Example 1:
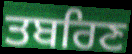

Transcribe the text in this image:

ਤਬਰਿਣ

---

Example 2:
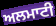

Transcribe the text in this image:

ਅਲਮਾਟੀ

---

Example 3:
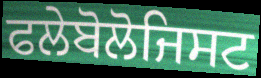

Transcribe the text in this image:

ਫਲੇਬੋਲੋਜਿਸਟ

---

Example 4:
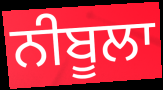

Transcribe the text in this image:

ਨੀਬੂਲਾ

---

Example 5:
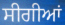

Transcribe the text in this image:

ਸੀਗੀਆਂ